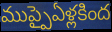
ముప్పైఏళ్లకింద